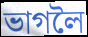
ভাগলৈ